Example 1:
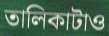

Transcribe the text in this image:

তালিকাটাও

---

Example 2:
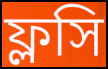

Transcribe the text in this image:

ফ্লসি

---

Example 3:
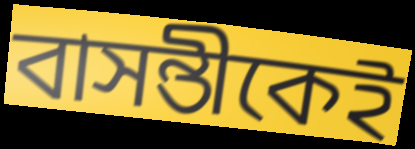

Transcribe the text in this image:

বাসন্তীকেই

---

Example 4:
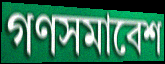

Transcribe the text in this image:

গণসমাবেশ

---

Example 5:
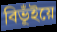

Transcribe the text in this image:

বিভূঁইয়ে